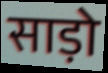
साड़ो